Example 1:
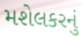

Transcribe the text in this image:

મશેલકરનું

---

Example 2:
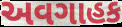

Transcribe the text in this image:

અવગાહક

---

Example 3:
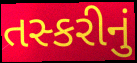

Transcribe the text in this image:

તસ્કરીનું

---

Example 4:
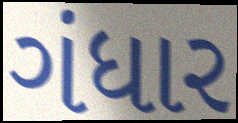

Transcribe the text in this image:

ગંધાર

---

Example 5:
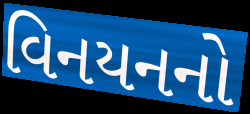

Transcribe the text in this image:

વિનયનનો